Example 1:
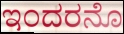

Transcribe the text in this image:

ಇಂದರನೊ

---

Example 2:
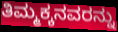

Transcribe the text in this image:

ತಿಮ್ಮಕ್ಕನವರನ್ನು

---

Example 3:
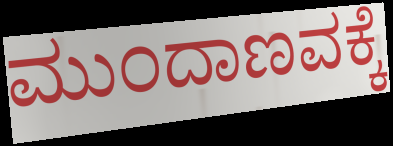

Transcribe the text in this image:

ಮುಂದಾಣವಕ್ಕೆ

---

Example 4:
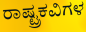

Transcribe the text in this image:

ರಾಷ್ಟ್ರಕವಿಗಳ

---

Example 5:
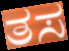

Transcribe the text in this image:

ತಸ